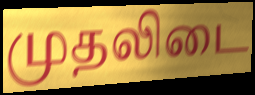
முதலிடை